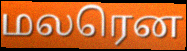
மலரென